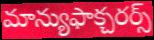
మాన్యుఫాక్చరర్స్